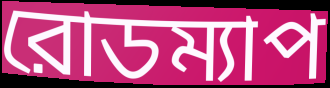
রোডম্যাপ